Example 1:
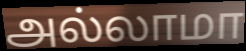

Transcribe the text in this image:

அல்லாமா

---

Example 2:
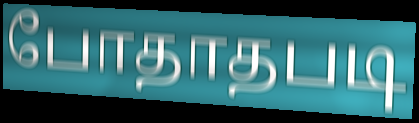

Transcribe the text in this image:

போதாதபடி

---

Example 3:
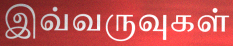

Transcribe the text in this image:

இவ்வருவுகள்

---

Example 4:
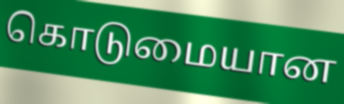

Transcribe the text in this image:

கொடுமையான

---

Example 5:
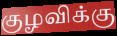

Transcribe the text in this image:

குழவிக்கு